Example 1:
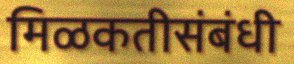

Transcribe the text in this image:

मिळकतीसंबंधी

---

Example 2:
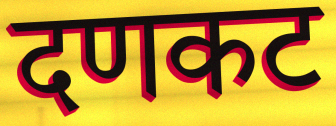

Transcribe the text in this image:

दणकट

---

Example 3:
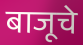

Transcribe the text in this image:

बाजूचे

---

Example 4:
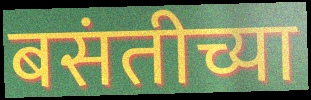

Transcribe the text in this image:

बसंतीच्या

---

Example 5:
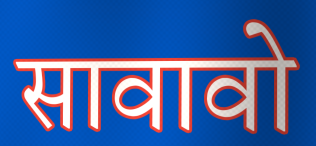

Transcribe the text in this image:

सावावो